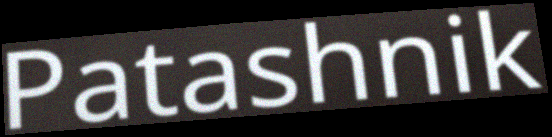
Patashnik